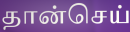
தான்செய்